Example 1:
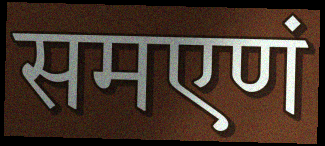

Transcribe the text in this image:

समएणं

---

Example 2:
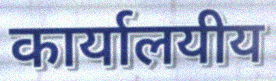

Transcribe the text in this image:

कार्यालयीय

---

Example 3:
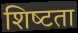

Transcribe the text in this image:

शिष्‍टता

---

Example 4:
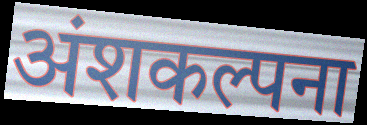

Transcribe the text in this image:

अंशकल्पना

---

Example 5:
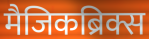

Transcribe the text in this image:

मैजिकब्रिक्स